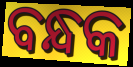
ବନ୍ଧକ